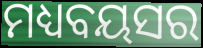
ମଧ୍ୟବୟସର